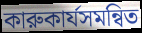
কারুকার্যসমন্বিত